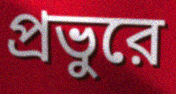
প্রভুরে